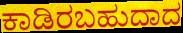
ಕಾಡಿರಬಹುದಾದ